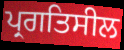
ਪ੍ਰਗਤਿਸੀਲ